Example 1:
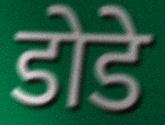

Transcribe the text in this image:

डोडे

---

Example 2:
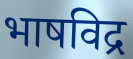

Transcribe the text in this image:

भाषविद्र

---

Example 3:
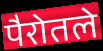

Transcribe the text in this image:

पैरोतले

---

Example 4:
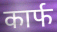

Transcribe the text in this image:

कार्फ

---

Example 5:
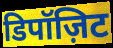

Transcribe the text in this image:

डिपॉज़िट